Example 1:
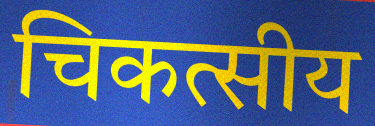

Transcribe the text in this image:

चिकत्सीय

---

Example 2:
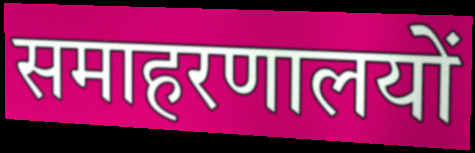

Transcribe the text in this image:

समाहरणालयों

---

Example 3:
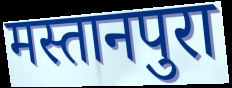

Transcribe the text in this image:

मस्तानपुरा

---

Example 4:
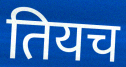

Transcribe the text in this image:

तियच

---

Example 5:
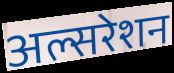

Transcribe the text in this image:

अल्सरेशन